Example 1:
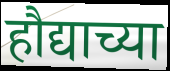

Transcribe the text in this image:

हौद्याच्या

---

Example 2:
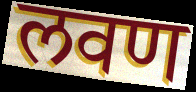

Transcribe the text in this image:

लवण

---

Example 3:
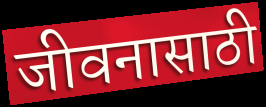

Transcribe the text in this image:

जीवनासाठी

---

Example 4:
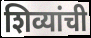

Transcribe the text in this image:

शिव्यांची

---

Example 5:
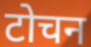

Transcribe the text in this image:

टोचन